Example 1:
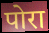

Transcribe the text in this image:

पोरा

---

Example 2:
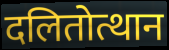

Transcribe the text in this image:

दलितोत्थान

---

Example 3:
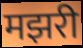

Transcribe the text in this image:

मझरी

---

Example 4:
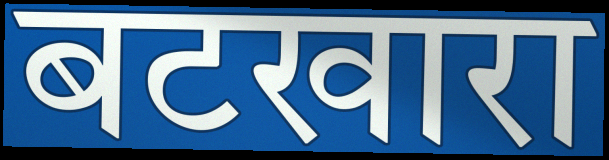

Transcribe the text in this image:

बटखारा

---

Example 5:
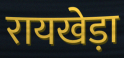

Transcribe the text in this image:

रायखेड़ा